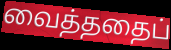
வைத்ததைப்